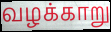
வழக்காறு